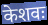
केशवः